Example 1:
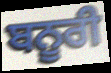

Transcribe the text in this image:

ਬਨੂਰੀ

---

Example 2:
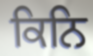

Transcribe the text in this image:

ਕਿਨਿ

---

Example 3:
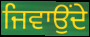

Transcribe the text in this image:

ਜਿਵਾਉਂਦੇ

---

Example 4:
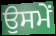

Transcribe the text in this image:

ਉਸਮੇਂ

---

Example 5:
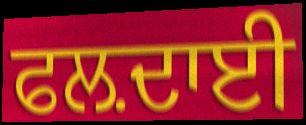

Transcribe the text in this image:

ਫਲ਼ਦਾਈ